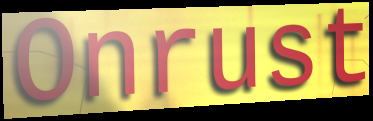
Onrust